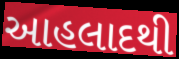
આહલાદથી